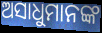
ଅସାଧୁମାନଙ୍କ